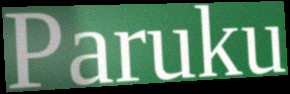
Paruku